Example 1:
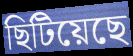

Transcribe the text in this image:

ছিটিয়েছে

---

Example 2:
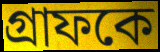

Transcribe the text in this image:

গ্রাফকে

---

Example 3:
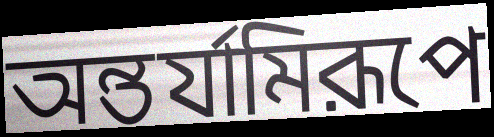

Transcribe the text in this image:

অন্তর্যামিরূপে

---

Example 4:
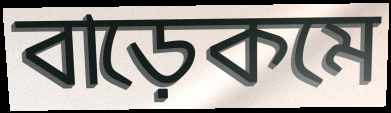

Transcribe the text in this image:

বাড়েকমে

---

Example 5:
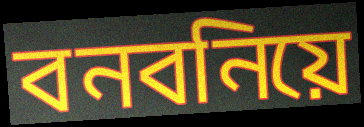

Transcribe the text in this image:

বনবনিয়ে